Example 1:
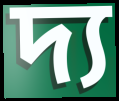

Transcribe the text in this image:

দ্য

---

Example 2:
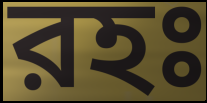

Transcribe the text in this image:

রহঃ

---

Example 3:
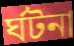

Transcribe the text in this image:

র্ঘটনা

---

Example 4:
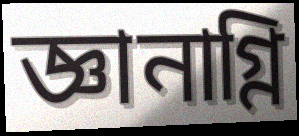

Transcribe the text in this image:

জ্ঞানাগ্নি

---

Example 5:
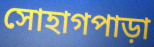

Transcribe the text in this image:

সোহাগপাড়া